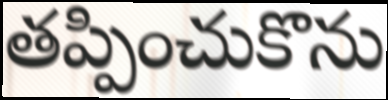
తప్పించుకొను